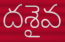
దశైవ